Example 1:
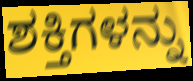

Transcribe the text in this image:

ಶಕ್ತಿಗಳನ್ನು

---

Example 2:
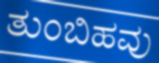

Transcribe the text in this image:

ತುಂಬಿಹವು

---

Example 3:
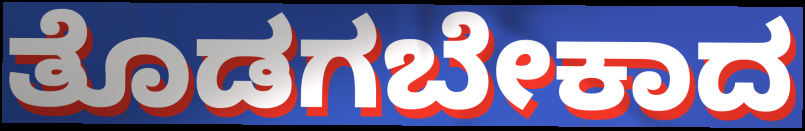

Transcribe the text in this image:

ತೊಡಗಬೇಕಾದ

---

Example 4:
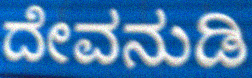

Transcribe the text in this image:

ದೇವನುಡಿ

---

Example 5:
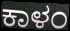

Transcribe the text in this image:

ಕಾಳಂ